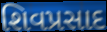
શિવપ્રસાદ